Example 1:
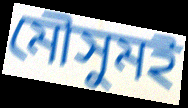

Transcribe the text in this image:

মৌসুমই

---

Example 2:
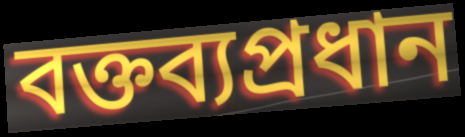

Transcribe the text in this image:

বক্তব্যপ্রধান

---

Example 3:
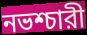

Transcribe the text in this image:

নভশ্চারী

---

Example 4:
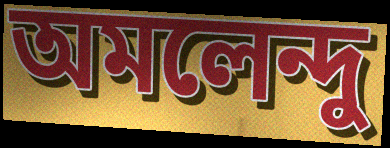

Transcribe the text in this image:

অমলেন্দু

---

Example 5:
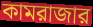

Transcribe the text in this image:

কামরাজার